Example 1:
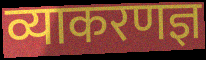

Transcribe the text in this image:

व्याकरणज्ञ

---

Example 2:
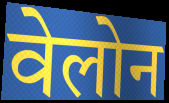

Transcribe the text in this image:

वेलोन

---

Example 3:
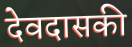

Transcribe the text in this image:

देवदासकी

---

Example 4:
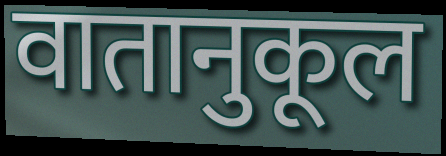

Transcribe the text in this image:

वातानुकूल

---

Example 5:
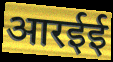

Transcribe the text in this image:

आरईई